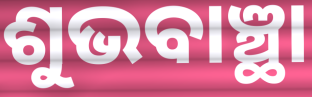
ଶୁଭବାଞ୍ଛା